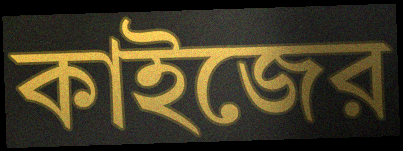
কাইজের